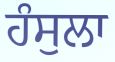
ਹੰਸੁਲਾ